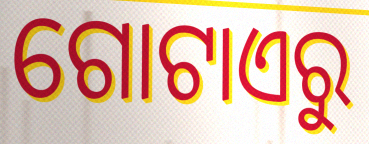
ଗୋଟାଏରୁ